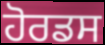
ਹੋਰਡਸ